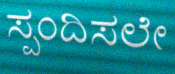
ಸ್ಪಂದಿಸಲೇ